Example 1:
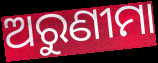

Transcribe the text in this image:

ଅରୁଣୀମା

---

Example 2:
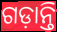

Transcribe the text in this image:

ଗଡ଼ାନ୍ତି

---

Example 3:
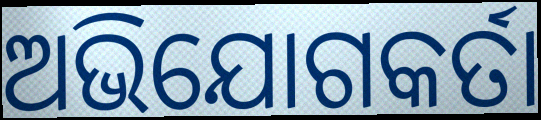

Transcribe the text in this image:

ଅଭିଯୋଗକର୍ତା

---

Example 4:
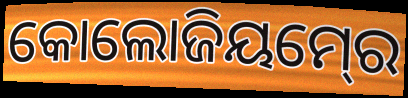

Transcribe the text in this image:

କୋଲୋଜିୟମ୍‍ରେ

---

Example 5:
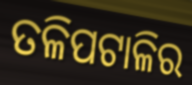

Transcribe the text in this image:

ତଳିପଟାଳିର